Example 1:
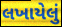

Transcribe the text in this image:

લખાયેલું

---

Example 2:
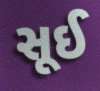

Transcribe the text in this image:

સૂઈ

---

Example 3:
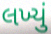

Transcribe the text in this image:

લખ્યું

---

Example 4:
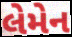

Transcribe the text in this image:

લેમેન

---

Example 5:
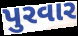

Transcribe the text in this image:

પુરવાર